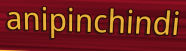
anipinchindi